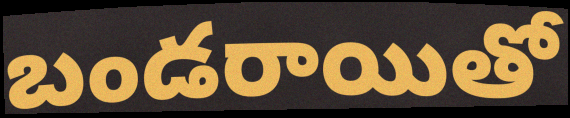
బండరాయితో